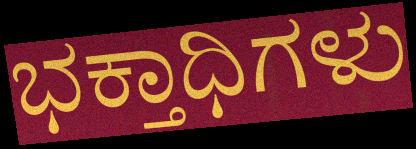
ಭಕ್ತಾಧಿಗಳು